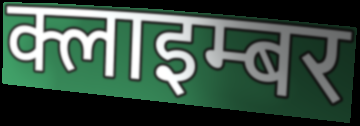
क्लाइम्बर